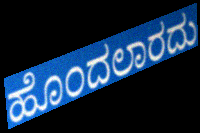
ಹೊಂದಲಾರದು